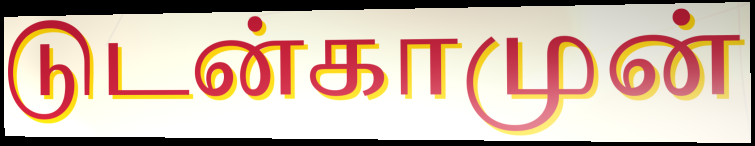
டுடன்காமுன்